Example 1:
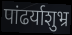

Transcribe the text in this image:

पांढर्याशुभ्र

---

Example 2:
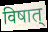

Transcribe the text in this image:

विषात्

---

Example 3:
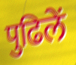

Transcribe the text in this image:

पुढिलें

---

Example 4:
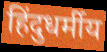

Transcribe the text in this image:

हिंदुधर्मीय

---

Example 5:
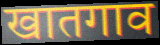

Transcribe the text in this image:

खातगाव